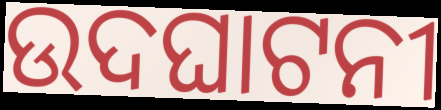
ଉଦଘାଟନୀ